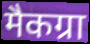
मैकग्रा